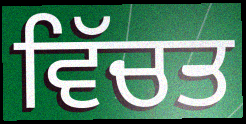
ਵਿੱਚਤ